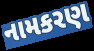
નામકરણ